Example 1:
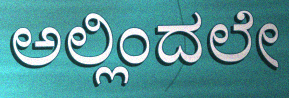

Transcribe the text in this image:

ಅಲ್ಲಿಂದಲೇ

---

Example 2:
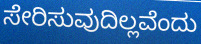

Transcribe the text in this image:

ಸೇರಿಸುವುದಿಲ್ಲವೆಂದು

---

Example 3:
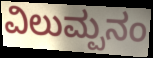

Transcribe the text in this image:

ವಿಲುಮ್ಪನಂ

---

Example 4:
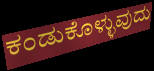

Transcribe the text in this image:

ಕಂಡುಕೊಳ್ಳುವುದು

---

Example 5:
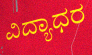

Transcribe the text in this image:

ವಿದ್ಯಾಧರ